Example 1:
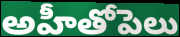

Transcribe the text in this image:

అహీతోపెలు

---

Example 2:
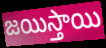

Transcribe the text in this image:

జయిస్తాయి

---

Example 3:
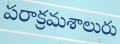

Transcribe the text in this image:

పరాక్రమశాలురు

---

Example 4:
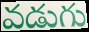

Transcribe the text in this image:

వడుగు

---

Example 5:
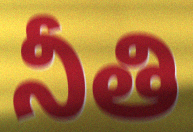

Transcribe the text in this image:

నీతి